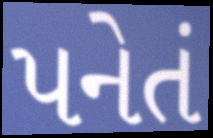
પનેતં